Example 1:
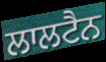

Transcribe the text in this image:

ਲਾਲਟੈਨ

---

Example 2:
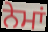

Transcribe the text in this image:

ਨੇਮਾਂ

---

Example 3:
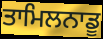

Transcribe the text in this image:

ਤਾਮਿਲਨਾਡੂ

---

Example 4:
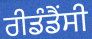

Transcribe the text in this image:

ਰੀਡੰਡੈਂਸੀ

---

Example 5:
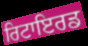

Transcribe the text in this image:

ਰਿਟਾਇਰਡ